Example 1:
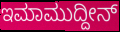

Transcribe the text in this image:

ಇಮಾಮುದ್ದೀನ್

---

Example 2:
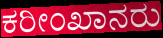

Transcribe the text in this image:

ಕರೀಂಖಾನರು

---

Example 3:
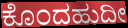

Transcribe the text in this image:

ಕೊಂದಹುದೀ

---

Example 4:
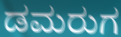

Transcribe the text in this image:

ಡಮರುಗ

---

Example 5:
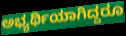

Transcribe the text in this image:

ಅಭ್ಯರ್ಥಿಯಾಗಿದ್ದರೂ